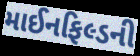
માઈનફિલ્ડની